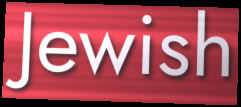
Jewish